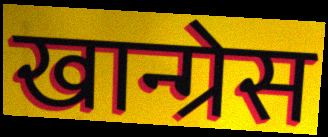
खान्ग्रेस